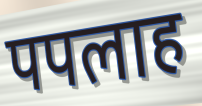
पपलाह